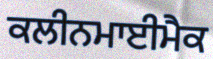
ਕਲੀਨਮਾਈਮੈਕ